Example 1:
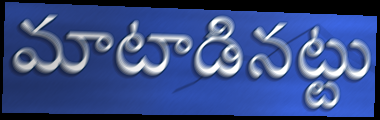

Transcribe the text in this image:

మాటాడినట్టు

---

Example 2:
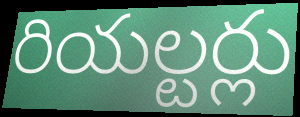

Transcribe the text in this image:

రియల్టర్లు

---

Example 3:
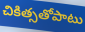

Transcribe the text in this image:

చికిత్సతోపాటు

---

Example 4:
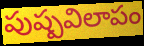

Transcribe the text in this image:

పుష్పవిలాపం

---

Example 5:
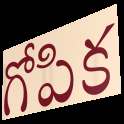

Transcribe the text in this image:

గోపిక